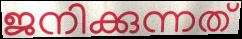
ജനിക്കുന്നത്